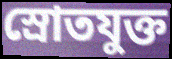
স্রোতযুক্ত